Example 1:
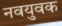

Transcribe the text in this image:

नवयुवक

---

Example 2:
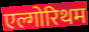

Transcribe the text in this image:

एल्गोरिथम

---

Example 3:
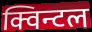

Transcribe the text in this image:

क्विन्टल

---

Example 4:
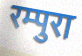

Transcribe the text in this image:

रम्पुरा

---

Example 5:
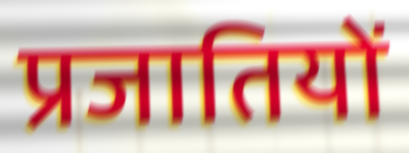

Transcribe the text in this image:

प्रजातियों